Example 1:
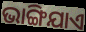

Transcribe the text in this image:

ଭାଙ୍ଗିଯାଏ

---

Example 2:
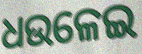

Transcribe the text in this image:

ଧଉଳେଇ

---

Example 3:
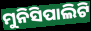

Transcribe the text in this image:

ମୁନିସିପାଲିଟି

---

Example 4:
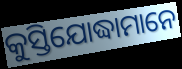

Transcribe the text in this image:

କୁସ୍ତିଯୋଦ୍ଧାମାନେ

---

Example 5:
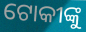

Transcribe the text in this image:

ଟୋକୀଙ୍କୁ